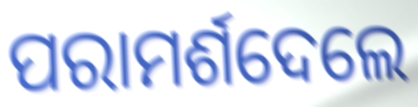
ପରାମର୍ଶଦେଲେ